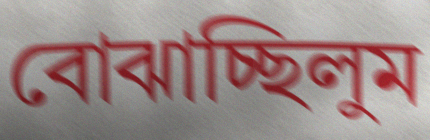
বোঝাচ্ছিলুম